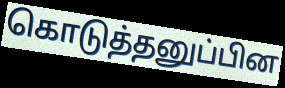
கொடுத்தனுப்பின